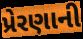
પ્રેરણાની